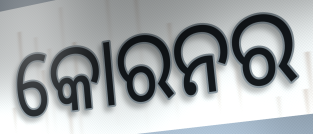
କୋରନର